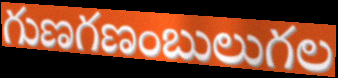
గుణగణంబులుగల